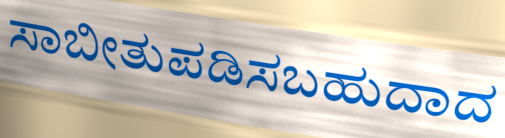
ಸಾಬೀತುಪಡಿಸಬಹುದಾದ